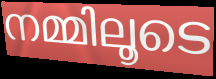
നമ്മിലൂടെ